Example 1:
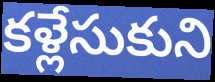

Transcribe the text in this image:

కళ్లేసుకుని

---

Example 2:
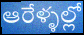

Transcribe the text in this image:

ఆరేళ్ళల్లో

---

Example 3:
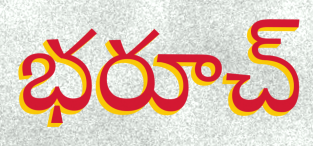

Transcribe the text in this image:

భరూచ్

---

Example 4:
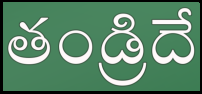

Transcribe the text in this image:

తండ్రిదే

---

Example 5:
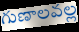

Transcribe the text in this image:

గుణాలవల్ల